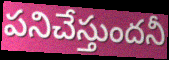
పనిచేస్తుందనీ